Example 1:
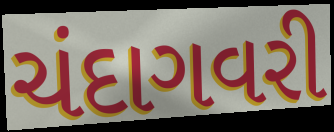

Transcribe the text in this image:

ચંદાગવરી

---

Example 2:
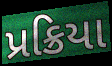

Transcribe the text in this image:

પ્રક્રિયા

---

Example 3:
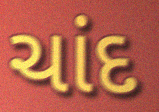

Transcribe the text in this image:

ચાંદ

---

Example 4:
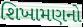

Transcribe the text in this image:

શિખામણનો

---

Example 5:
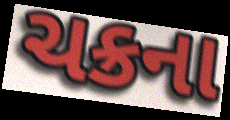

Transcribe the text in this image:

ચક્રના